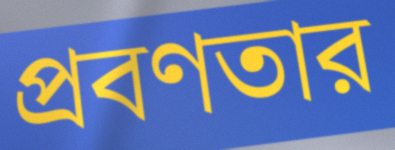
প্রবণতার